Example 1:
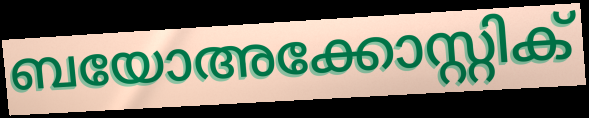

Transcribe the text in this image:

ബയോഅക്കോസ്റ്റിക്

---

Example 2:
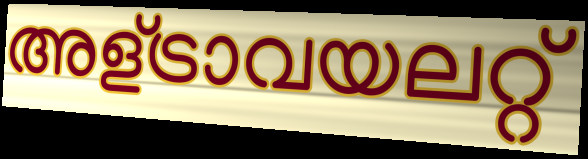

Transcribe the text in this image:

അള്ട്രാവയലറ്റ്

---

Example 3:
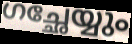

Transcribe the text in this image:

ഗച്ഛേയ്യും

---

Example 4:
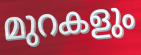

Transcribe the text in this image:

മുറകളും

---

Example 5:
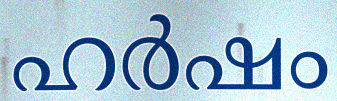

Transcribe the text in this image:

ഹർഷം